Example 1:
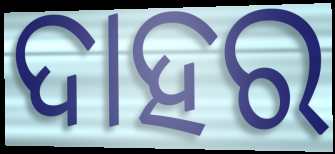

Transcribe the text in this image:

ଦାହର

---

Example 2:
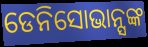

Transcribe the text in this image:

ଡେନିସୋଭାନ୍ସଙ୍କ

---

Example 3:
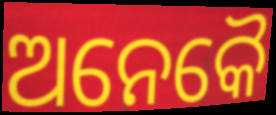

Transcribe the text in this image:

ଅନେକୈ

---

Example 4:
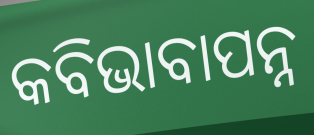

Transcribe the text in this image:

କବିଭାବାପନ୍ନ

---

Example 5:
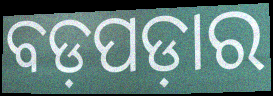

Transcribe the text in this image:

ବଡ଼ପଡ଼ାର